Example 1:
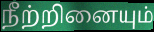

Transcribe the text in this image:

நீற்றினையும்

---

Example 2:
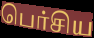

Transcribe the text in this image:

பெர்சிய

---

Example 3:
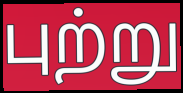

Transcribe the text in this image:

புற்று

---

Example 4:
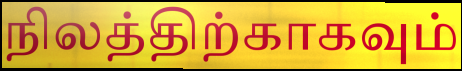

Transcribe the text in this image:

நிலத்திற்காகவும்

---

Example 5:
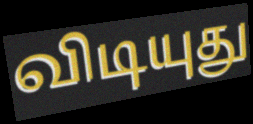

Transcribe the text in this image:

விடியுது